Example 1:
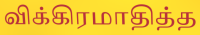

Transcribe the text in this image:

விக்கிரமாதித்த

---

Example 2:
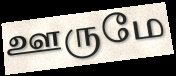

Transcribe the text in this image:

ஊருமே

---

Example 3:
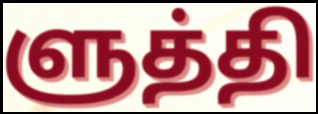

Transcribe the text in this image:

ளுத்தி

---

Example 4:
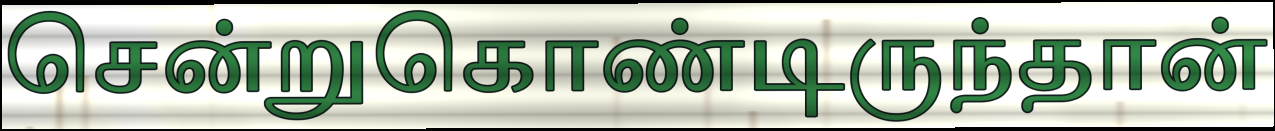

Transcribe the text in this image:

சென்றுகொண்டிருந்தான்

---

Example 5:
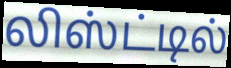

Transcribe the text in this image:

லிஸ்ட்டில்